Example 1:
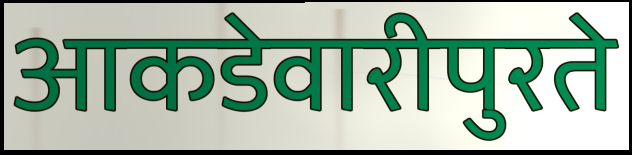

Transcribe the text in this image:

आकडेवारीपुरते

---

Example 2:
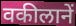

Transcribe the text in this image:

वकीलानें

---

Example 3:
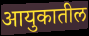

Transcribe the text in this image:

आयुकातील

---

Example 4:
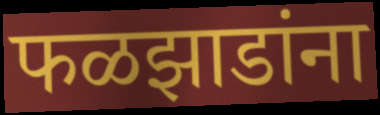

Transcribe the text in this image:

फळझाडांना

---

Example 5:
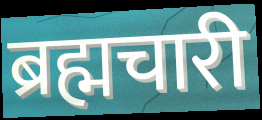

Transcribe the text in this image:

ब्रह्मचारी